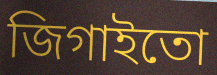
জিগাইতো